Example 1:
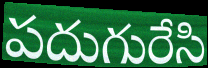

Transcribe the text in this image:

పదుగురేసి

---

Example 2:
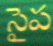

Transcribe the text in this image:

సైప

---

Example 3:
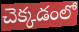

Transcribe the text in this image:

చెక్కడంలో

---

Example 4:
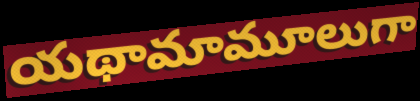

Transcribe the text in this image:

యథామామూలుగా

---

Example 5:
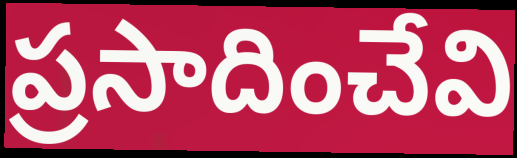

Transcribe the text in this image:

ప్రసాదించేవి